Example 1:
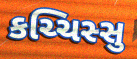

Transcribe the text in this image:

કચ્ચિસ્સુ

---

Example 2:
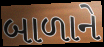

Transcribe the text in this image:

બાળાને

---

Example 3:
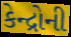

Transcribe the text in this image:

કેન્દ્રોની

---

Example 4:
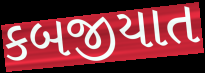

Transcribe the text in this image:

કબજીયાત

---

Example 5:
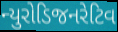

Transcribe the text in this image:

ન્યુરોડિજનરેટિવ